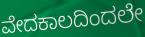
ವೇದಕಾಲದಿಂದಲೇ